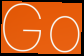
Go